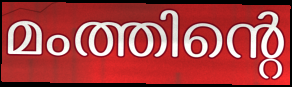
മംത്തിന്റെ